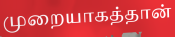
முறையாகத்தான்